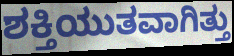
ಶಕ್ತಿಯುತವಾಗಿತ್ತು